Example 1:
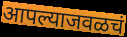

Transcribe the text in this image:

आपल्याजवळचं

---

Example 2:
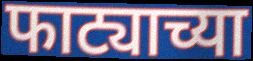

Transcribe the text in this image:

फाट्याच्या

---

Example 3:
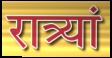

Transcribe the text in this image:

रात्र्यां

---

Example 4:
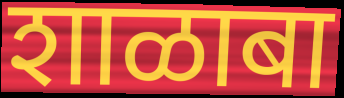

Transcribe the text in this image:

शाळाबा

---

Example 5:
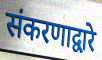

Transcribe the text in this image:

संकरणाद्वारे